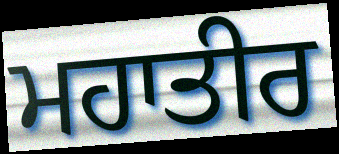
ਮਹਾਤੀਰ